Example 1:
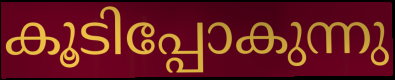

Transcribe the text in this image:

കൂടിപ്പോകുന്നു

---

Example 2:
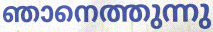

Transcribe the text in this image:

ഞാനെത്തുന്നു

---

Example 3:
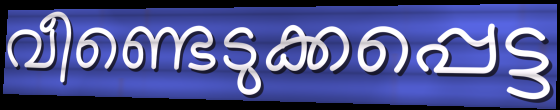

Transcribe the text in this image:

വീണ്ടെടുക്കപ്പെട്ട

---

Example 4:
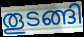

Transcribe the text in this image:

തൂടങ്ങി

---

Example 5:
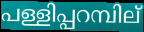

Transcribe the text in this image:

പള്ളിപ്പറമ്പില്